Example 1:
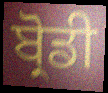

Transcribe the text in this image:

ਬ੍ਰੋਡੀ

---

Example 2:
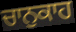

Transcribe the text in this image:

ਚਾਨੁਕਾਹ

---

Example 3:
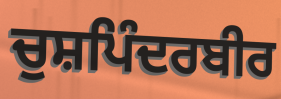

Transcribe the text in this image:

ਚੁਸ਼ਪਿੰਦਰਬੀਰ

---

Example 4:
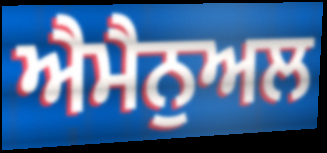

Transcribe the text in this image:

ਐਮੈਨੁਅਲ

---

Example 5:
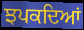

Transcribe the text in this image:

ਝਪਕਦਿਆਂ